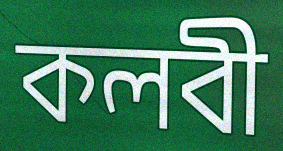
কলবী